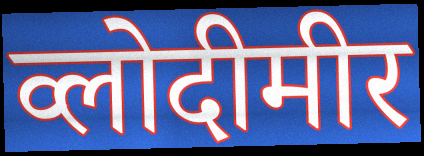
व्लोदीमीर